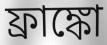
ফ্রাঙ্কো